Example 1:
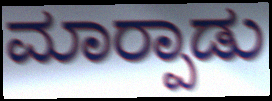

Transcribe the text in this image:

ಮಾರ‍್ಪಾಡು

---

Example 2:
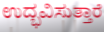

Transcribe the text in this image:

ಉದ್ಭವಿಸುತ್ತಾರೆ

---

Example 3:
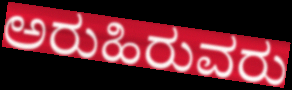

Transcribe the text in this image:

ಅರುಹಿರುವರು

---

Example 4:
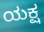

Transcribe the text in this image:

ಯಕ್ಷ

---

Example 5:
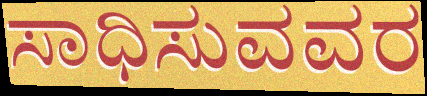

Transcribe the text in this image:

ಸಾಧಿಸುವವರ